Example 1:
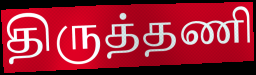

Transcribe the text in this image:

திருத்தணி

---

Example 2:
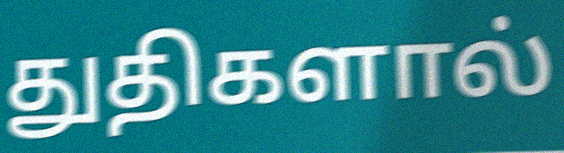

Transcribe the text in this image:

துதிகளால்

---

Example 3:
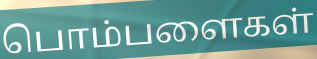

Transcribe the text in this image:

பொம்பளைகள்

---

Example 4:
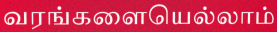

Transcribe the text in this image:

வரங்களையெல்லாம்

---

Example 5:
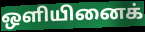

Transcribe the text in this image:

ஒளியினைக்